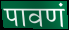
पावणं